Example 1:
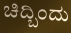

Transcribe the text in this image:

ಚಿದ್ಬಿಂದು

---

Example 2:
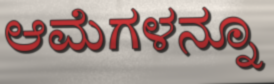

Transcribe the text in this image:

ಆಮೆಗಳನ್ನೂ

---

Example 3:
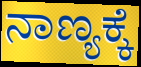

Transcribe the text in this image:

ನಾಣ್ಯಕ್ಕೆ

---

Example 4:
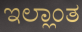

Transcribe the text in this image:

ಇಲ್ಲಾಂತ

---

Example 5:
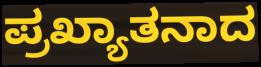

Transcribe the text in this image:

ಪ್ರಖ್ಯಾತನಾದ